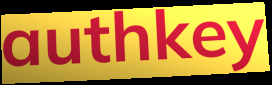
authkey